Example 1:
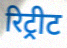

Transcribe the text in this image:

रिट्रीट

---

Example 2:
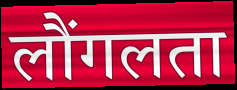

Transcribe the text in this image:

लौंगलता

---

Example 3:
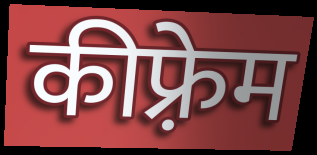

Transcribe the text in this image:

कीफ़्रेम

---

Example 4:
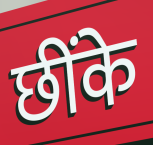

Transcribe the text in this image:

छींके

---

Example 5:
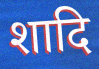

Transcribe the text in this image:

शादि